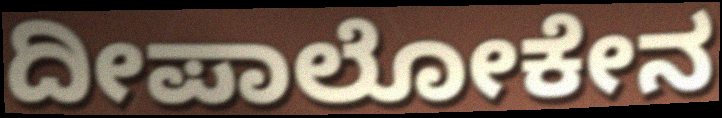
ದೀಪಾಲೋಕೇನ